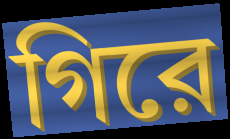
গিরে